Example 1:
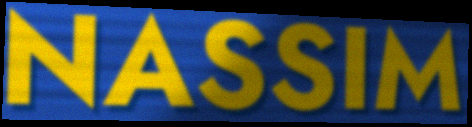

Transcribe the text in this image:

NASSIM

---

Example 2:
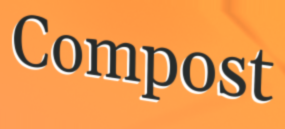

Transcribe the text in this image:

Compost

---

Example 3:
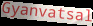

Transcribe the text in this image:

Gyanvatsal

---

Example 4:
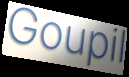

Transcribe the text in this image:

Goupil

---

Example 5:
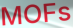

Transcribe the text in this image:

MOFs